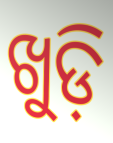
ଖୁଡ଼ି